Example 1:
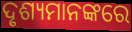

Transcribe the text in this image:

ଦୃଶ୍ୟମାନଙ୍କରେ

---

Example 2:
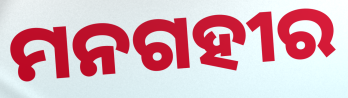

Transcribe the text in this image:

ମନଗହୀର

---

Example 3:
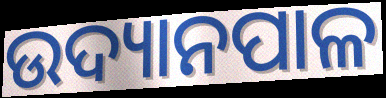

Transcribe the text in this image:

ଉଦ୍ୟାନପାଳ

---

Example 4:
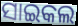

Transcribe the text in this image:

ସାଇକଲ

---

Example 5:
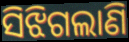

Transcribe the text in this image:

ସିଝିଗଲାଣି